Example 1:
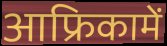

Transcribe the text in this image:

आफ्रिकामें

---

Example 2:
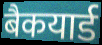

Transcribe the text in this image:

बैकयार्ड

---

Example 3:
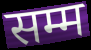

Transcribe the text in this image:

सम्म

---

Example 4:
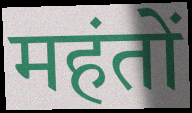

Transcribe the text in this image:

महंतों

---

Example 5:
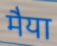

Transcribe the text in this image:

मैया